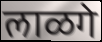
लाळगे